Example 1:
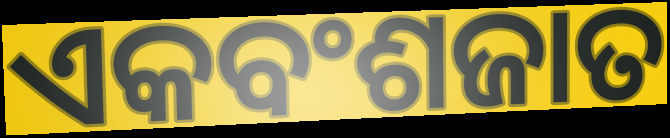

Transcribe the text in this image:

ଏକବଂଶଜାତ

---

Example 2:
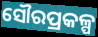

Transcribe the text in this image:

ସୌରପ୍ରକଳ୍ପ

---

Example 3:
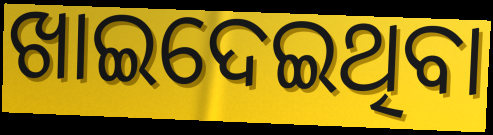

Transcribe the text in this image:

ଖାଇଦେଇଥିବା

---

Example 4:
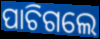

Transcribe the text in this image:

ପାଚିଗଲେ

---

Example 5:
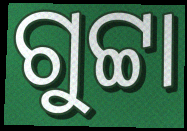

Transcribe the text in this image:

ଗୁଟ୍ଟା